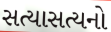
સત્યાસત્યનો